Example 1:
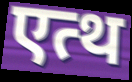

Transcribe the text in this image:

एत्थ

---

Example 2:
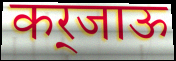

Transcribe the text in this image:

कर्जाऊ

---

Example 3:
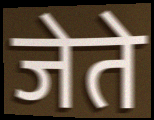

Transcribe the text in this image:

जेते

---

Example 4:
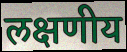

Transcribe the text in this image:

लक्षणीय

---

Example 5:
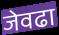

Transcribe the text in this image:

जेवढा